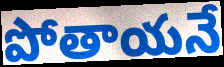
పోతాయనే